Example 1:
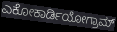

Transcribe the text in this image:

ಎಕೋಕಾರ್ಡಿಯೋಗ್ರಾಮ್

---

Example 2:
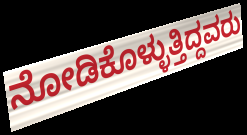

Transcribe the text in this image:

ನೋಡಿಕೊಳ್ಳುತ್ತಿದ್ದವರು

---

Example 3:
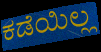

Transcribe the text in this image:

ಕಡೆಯಿಲ್ಲ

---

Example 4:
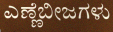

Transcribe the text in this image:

ಎಣ್ಣೆಬೀಜಗಳು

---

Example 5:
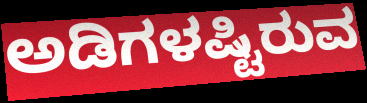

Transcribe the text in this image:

ಅಡಿಗಳಷ್ಟಿರುವ